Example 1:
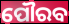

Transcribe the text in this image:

ପୌରବ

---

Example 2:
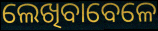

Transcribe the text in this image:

ଲେଖିବାବେଳେ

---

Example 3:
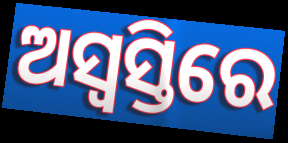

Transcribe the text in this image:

ଅସ୍ୱସ୍ତିରେ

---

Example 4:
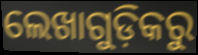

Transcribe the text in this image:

ଲେଖାଗୁଡ଼ିକରୁ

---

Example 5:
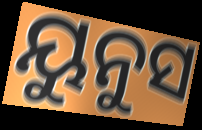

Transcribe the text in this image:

ୟୁନୁସ